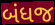
બંધજ